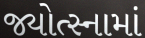
જ્યોત્સ્નામાં